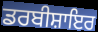
ਡਰਬੀਸ਼ਾਇਰ